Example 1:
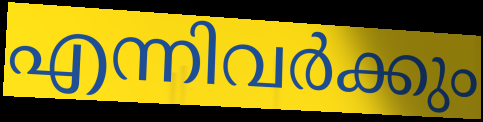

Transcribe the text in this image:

എന്നിവർക്കും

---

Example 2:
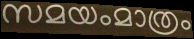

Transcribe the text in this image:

സമയംമാത്രം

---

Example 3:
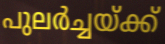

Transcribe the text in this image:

പുലർച്ചയ്ക്ക്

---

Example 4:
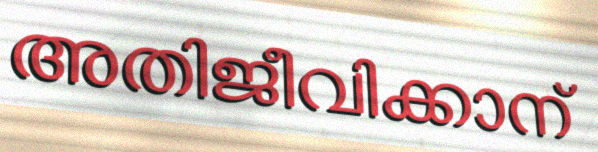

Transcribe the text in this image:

അതിജീവിക്കാന്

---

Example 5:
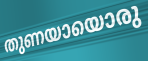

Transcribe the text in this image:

തുണയായൊരു